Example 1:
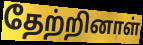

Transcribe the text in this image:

தேற்றினாள்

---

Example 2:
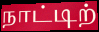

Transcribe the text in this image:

நாட்டிற்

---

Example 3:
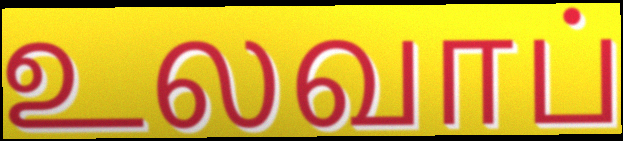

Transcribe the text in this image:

உலவாப்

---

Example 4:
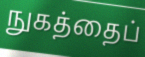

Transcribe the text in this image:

நுகத்தைப்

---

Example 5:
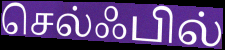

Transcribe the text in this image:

செல்ஃபில்